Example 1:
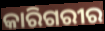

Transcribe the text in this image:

କାରିଗରୀର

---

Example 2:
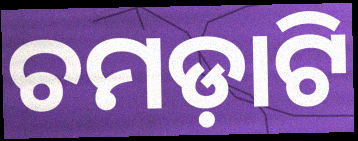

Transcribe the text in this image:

ଚମଡ଼ାଟି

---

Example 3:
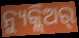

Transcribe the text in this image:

ନ୍ୟୁକ୍ଲିଅର୍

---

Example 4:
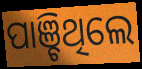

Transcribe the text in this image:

ପାଞ୍ଚିଥିଲେ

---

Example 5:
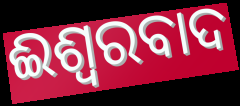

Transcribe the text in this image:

ଈଶ୍ବରବାଦ